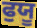
ਫੁਯੂ